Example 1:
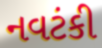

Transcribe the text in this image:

નવટંકી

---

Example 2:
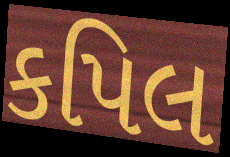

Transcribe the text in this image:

કપિલ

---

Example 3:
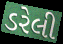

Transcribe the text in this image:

ડરેલી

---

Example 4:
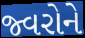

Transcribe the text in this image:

જ્વરોને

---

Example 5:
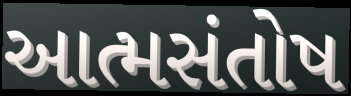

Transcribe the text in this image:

આત્મસંતોષ